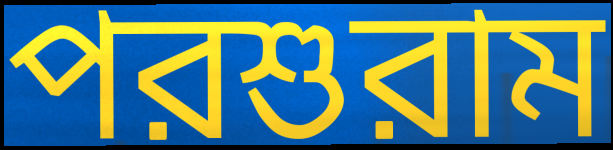
পরশুরাম